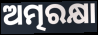
ଅତ୍ମରକ୍ଷା